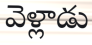
వెళ్లాడు